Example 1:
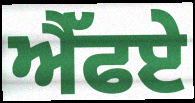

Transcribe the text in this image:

ਐੱਫਏ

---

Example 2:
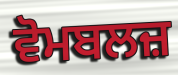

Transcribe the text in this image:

ਵੋਮਬਲਜ਼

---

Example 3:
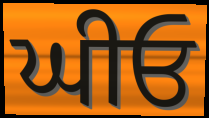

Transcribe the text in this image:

ਘੀਓ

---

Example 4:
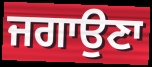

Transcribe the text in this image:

ਜਗਾਉਣਾ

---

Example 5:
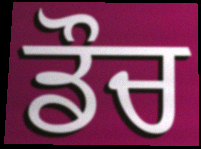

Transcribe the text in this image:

ਡੌਚ